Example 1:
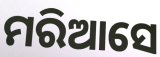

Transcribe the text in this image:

ମରିଆସେ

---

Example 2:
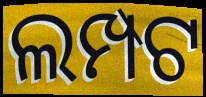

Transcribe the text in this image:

ଲମ୍ପଟ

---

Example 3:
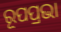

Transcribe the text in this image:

ରୂପପ୍ରଭା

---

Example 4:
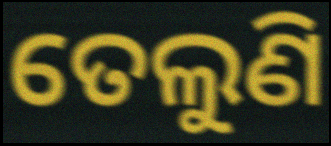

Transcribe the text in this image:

ତେଲୁଣି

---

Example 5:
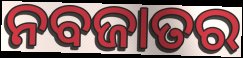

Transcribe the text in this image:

ନବଜାତର